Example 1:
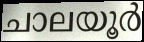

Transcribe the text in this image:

ചാലയൂർ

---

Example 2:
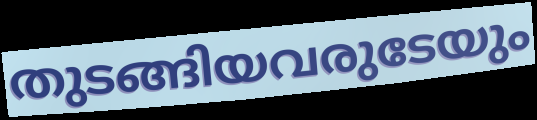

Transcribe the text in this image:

തുടങ്ങിയവരുടേയും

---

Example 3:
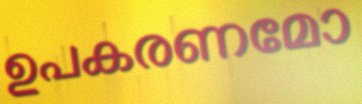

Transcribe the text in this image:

ഉപകരണമോ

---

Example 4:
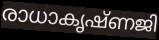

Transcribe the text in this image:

രാധാകൃഷ്ണജി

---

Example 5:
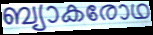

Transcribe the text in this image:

ബ്യാകരോഥ